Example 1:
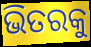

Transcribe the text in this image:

ଭିତରକୁ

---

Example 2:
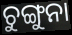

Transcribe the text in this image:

ଚୁଙ୍ଗୁନା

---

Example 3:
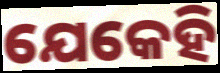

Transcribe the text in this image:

ଯେକେହି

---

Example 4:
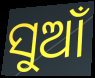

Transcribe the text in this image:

ସୁଆଁ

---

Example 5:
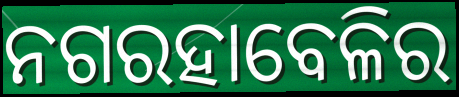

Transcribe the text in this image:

ନଗରହାବେଳିର